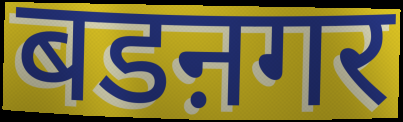
बडऩगर